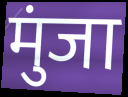
मुंजा